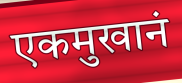
एकमुखानं